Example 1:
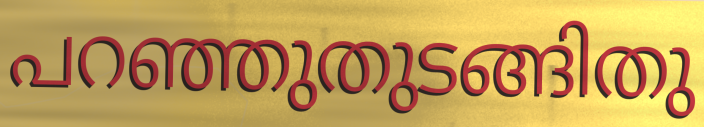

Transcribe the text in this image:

പറഞ്ഞുതുടങ്ങിതു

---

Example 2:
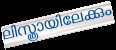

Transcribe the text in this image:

ലിസ്ത്രായിലേക്കും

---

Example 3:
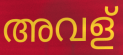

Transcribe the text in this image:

അവള്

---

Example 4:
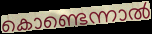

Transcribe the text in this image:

കൊണ്ടെന്നാൽ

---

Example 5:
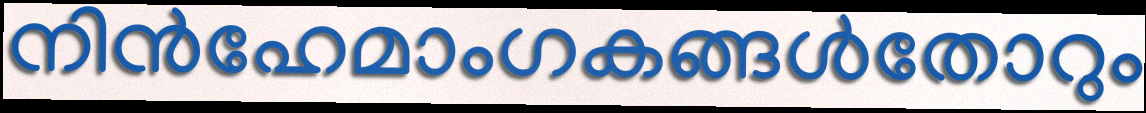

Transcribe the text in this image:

നിൻഹേമാംഗകങ്ങൾതോറും